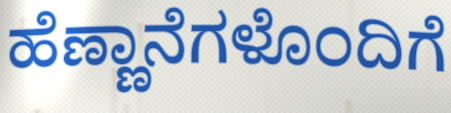
ಹೆಣ್ಣಾನೆಗಳೊಂದಿಗೆ